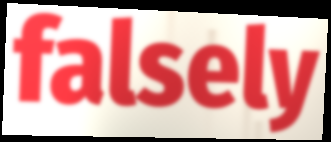
falsely